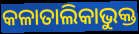
କଳାତାଲିକାଭୁକ୍ତ